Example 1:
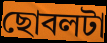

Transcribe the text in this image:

ছোবলটা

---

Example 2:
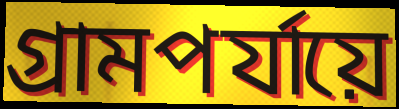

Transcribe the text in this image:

গ্রামপর্যায়ে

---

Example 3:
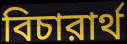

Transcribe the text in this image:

বিচারার্থ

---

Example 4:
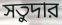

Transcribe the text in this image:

সতুদার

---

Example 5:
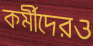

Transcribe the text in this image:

কর্মীদেরও